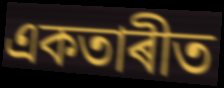
একতাৰীত